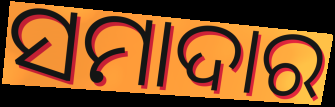
ସମାଦାର